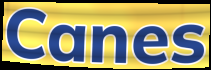
Canes